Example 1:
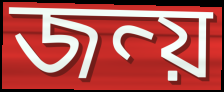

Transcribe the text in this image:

জন্য়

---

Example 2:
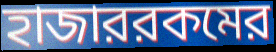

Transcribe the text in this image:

হাজাররকমের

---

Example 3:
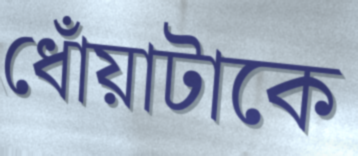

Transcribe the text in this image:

ধোঁয়াটাকে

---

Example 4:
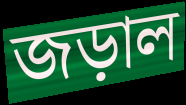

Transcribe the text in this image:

জড়াল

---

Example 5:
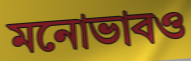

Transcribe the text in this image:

মনোভাবও